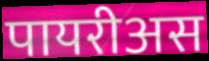
पायरीअस